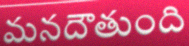
మనదౌతుంది